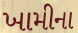
ખામીના